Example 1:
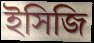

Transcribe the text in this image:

ইসিজি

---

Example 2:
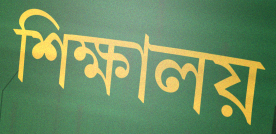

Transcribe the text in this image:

শিক্ষালয়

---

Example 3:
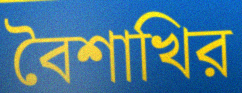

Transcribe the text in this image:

বৈশাখির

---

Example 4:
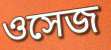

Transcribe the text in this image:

ওসেজ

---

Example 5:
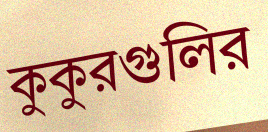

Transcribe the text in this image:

কুকুরগুলির